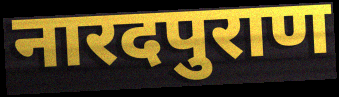
नारदपुराण